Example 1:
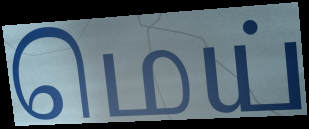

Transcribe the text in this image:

மெய்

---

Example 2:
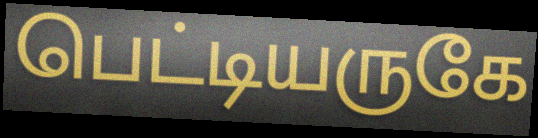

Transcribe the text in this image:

பெட்டியருகே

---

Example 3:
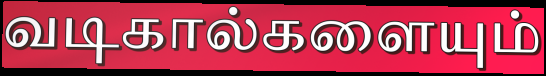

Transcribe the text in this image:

வடிகால்களையும்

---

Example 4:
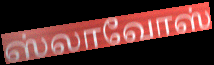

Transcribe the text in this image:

ஸ்லாவோஸ்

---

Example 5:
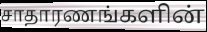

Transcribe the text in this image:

சாதாரணங்களின்